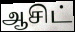
ஆசிட்